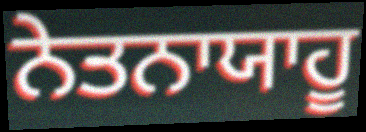
ਨੇਤਨਾਯਾਹੂ